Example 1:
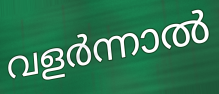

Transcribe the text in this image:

വളർന്നാൽ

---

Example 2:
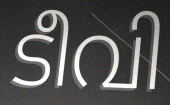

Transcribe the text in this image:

ടീവി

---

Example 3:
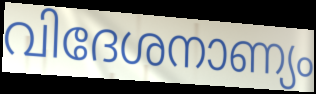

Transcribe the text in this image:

വിദേശനാണ്യം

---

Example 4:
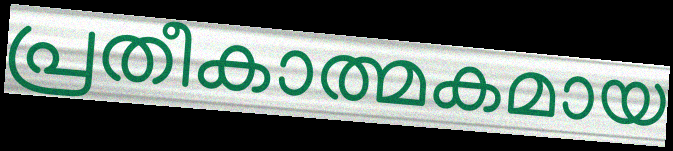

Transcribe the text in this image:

പ്രതീകാത്മകമായ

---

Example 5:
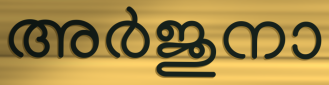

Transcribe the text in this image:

അർജുനാ